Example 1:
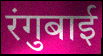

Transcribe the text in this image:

रंगुबाई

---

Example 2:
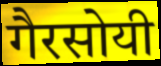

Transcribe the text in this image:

गैरसोयी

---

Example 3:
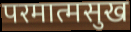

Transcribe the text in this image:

परमात्मसुख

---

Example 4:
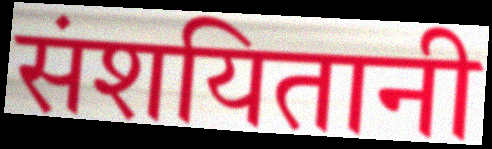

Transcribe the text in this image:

संशयितानी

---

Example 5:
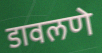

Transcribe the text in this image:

डावलणे